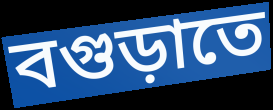
বগুড়াতে